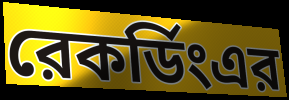
রেকর্ডিংএর